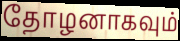
தோழனாகவும்